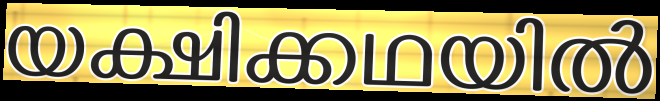
യക്ഷിക്കഥയിൽ